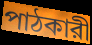
পাঠকারী